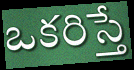
ఒకరిస్తే